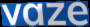
vaze